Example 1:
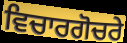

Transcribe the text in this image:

ਵਿਚਾਰਗੋਚਰੇ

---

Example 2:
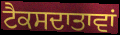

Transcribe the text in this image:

ਟੈਕਸਦਾਤਾਵਾਂ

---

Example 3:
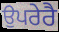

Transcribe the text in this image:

ਉਪਰੇਰੈ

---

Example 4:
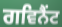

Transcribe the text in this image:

ਗਵਿਨੈਂਟ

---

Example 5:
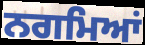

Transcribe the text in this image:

ਨਗਮਿਆਂ